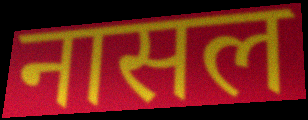
नासल